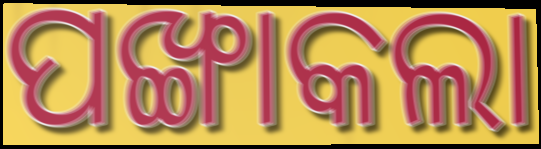
ପଙ୍ଖାକଲା